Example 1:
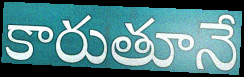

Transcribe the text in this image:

కారుతూనే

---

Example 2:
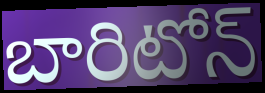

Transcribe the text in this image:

బారిటోన్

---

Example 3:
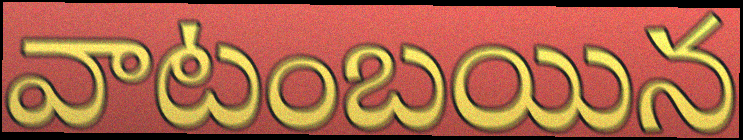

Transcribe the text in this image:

వాటంబయిన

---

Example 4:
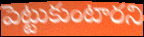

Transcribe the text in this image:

పెట్టుకుంటారని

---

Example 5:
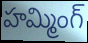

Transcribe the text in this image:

హమ్మింగ్